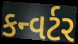
કન્વર્ટર